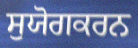
ਸੁਯੋਗਕਰਨ